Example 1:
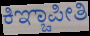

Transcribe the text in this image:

ಕಿಞ್ಚಾಪೀತಿ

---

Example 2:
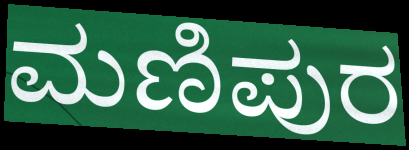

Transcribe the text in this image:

ಮಣಿಪುರ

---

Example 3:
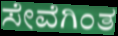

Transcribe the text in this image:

ಸೇವೆಗಿಂತ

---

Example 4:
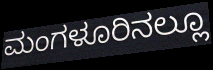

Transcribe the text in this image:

ಮಂಗಳೂರಿನಲ್ಲೂ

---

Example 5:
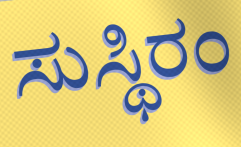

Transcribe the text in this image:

ಸುಸ್ಥಿರಂ